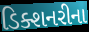
ડિક્શનરીના